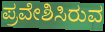
ಪ್ರವೇಶಿಸಿರುವ